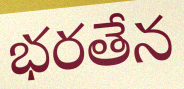
భరతేన